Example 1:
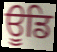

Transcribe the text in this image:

ਊਡਿ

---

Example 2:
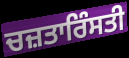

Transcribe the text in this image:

ਚਜ਼ਤਾਰਿੰਸਤੀ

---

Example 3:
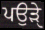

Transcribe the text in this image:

ਪਉੜੑੇ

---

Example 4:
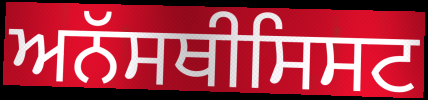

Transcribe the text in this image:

ਅਨੱਸਥੀਸਿਸਟ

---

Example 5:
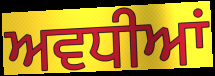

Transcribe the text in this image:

ਅਵਧੀਆਂ